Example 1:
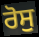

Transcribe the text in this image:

ਰੋਸੁ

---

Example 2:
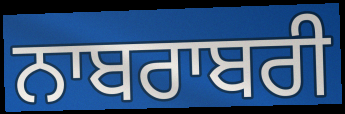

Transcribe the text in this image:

ਨਾਬਰਾਬਰੀ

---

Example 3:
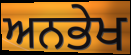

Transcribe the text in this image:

ਅਨਭੇਖ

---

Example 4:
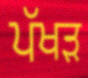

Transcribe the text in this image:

ਪੱਖੜ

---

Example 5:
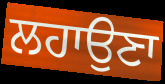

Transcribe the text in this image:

ਲਹਾਉਣਾ